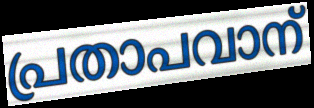
പ്രതാപവാന്